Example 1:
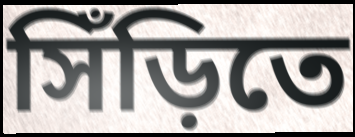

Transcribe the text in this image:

সিঁড়িতে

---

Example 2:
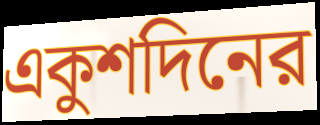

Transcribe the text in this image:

একুশদিনের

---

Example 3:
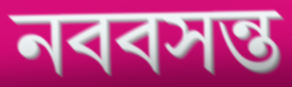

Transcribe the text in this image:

নববসন্ত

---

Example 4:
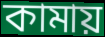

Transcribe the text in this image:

কামায়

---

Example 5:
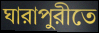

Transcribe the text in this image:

ঘারাপুরীতে